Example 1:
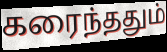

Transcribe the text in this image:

கரைந்ததும்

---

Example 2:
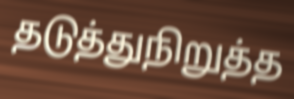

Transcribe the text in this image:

தடுத்துநிறுத்த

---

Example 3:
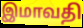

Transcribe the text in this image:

இமாவதி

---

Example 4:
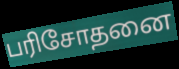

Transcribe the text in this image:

பரிசோதனை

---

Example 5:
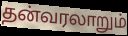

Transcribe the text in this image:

தன்வரலாறும்